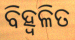
ବିହ୍ୱଳିତ